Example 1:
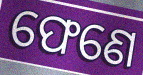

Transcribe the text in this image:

ଫେଣେ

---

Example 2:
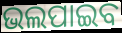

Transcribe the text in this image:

ଭଲପାଇବ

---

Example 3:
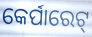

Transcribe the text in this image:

କେର୍ପାରେଟ୍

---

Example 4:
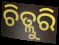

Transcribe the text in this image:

ଚିତ୍ଲୁରି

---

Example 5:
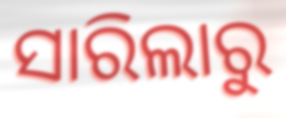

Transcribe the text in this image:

ସାରିଲାରୁ